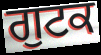
ਗੁਟਕ